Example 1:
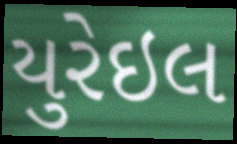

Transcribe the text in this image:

યુરેઇલ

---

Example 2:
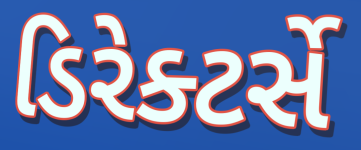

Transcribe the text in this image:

ડિરેક્ટર્સે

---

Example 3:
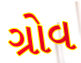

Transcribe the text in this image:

ગ્રોવ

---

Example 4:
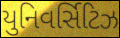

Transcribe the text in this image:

યુનિવર્સિટિઝ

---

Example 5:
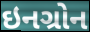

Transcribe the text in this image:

ઇનગ્રોન